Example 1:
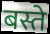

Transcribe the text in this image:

बस्ते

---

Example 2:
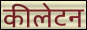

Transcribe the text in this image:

कीलेटन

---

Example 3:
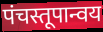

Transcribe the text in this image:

पंचस्तूपान्वय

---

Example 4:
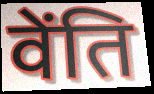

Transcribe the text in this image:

वेंति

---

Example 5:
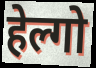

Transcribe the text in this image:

हेल्गो